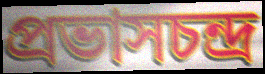
প্রভাসচন্দ্র